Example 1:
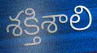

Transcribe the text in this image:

శక్తిశాలి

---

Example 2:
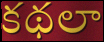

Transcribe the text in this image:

కథలా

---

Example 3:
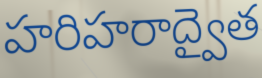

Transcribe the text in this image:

హరిహరాద్వైత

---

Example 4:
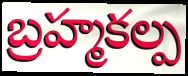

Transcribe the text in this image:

బ్రహ్మకల్ప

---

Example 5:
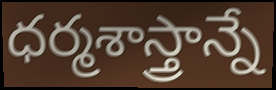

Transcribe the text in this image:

ధర్మశాస్త్రాన్నే